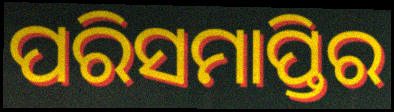
ପରିସମାପ୍ତିର